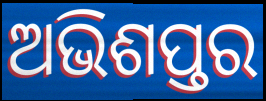
ଅଭିଶପ୍ତର